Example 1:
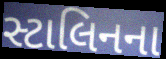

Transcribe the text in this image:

સ્ટાલિનના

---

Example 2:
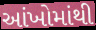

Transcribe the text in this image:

આંખોમાંથી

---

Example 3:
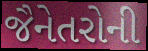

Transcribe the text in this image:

જૈનેતરોની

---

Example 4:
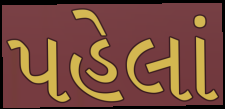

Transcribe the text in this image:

પહેલાં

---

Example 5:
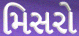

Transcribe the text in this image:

મિસરો